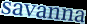
savanna